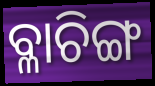
ବ୍ଳାଚିଙ୍ଗ